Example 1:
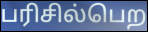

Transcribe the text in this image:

பரிசில்பெற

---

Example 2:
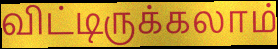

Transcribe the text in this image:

விட்டிருக்கலாம்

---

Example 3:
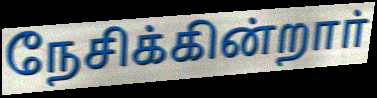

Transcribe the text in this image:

நேசிக்கின்றார்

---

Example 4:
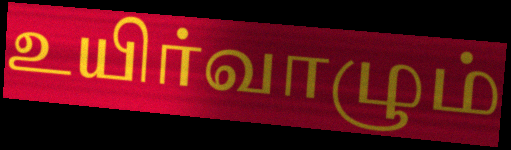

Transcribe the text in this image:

உயிர்வாழும்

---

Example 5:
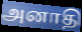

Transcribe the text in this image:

அனாதி